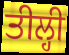
ਤੀਲ੍ਹੀ